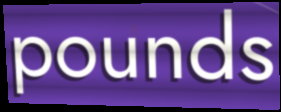
pounds